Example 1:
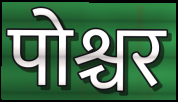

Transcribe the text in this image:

पोश्चर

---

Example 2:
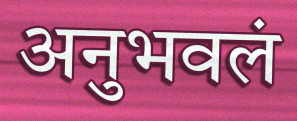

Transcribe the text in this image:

अनुभवलं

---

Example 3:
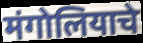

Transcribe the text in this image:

मंगोलियाचे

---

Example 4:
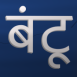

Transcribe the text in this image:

बंटू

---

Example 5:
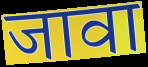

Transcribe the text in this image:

जावा